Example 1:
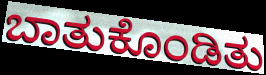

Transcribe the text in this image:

ಬಾತುಕೊಂಡಿತು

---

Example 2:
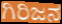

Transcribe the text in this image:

ಗಿರಿಜನ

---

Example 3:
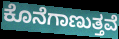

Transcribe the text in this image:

ಕೊನೆಗಾಣುತ್ತವೆ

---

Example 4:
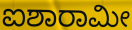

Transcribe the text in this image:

ಐಶಾರಾಮೀ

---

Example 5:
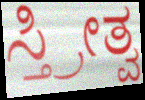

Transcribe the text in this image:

ಸ್ತ್ರೀತ್ವ